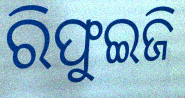
ରିଫୁଇଜି